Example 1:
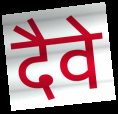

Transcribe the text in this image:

दैवे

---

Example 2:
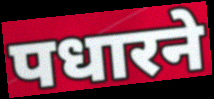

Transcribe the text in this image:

पधारने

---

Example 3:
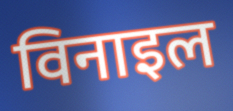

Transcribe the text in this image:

विनाइल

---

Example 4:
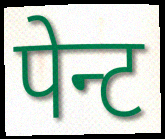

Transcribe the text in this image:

पेन्ट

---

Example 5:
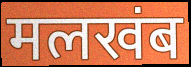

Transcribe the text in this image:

मलखंब